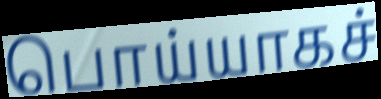
பொய்யாகச்